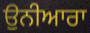
ਉਨੀਆਰਾ